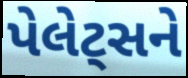
પેલેટ્સને